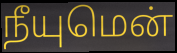
நீயுமென்